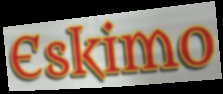
Eskimo